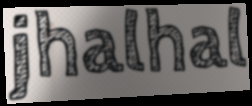
jhalhal